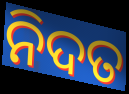
ନିଦତ